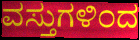
ವಸ್ತುಗಳಿಂದ